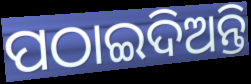
ପଠାଇଦିଅନ୍ତି